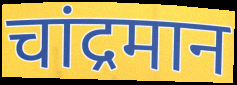
चांद्रमान